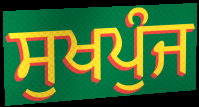
ਸੁਖਪੁੰਜ